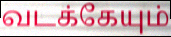
வடக்கேயும்